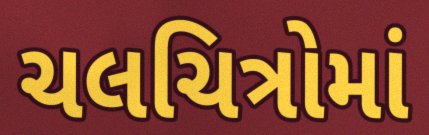
ચલચિત્રોમાં